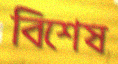
বিশেষ